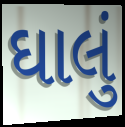
ઘાલું